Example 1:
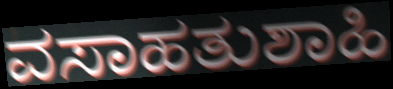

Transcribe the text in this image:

ವಸಾಹತುಶಾಹಿ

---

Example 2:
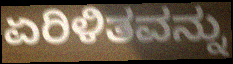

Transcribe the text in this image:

ಏರಿಳಿತವನ್ನು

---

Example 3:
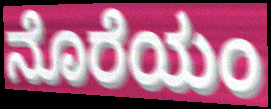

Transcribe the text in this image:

ನೊರೆಯಂ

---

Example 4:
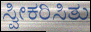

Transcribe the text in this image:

ಸ್ವೀಕರಿಸಿತು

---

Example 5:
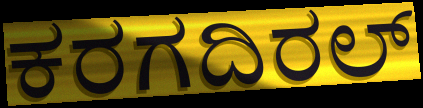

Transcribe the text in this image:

ಕರಗದಿರಲ್